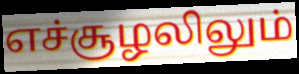
எச்சூழலிலும்